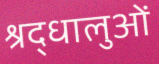
श्रद्धालुओं